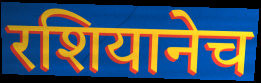
रशियानेच